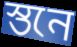
স্তনে